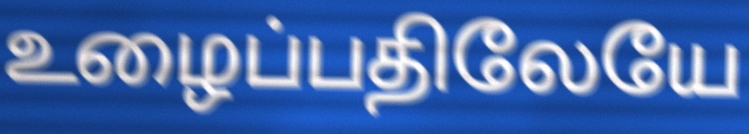
உழைப்பதிலேயே